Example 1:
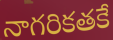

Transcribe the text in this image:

నాగరికతకే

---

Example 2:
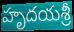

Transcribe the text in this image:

హృదయశ్రీ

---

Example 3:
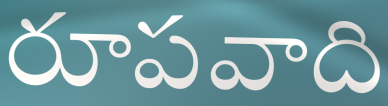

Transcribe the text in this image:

రూపవాది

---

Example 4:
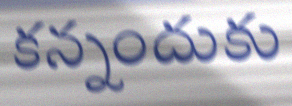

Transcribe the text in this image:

కన్నందుకు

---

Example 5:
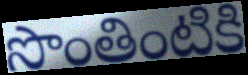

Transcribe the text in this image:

సొంతింటికి